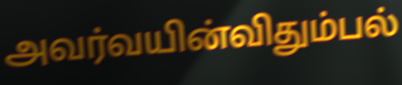
அவர்வயின்விதும்பல்